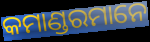
କମାଣ୍ଡରମାନେ